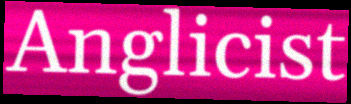
Anglicist